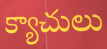
క్యాచులు